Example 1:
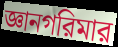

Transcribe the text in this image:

জ্ঞানগরিমার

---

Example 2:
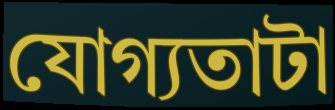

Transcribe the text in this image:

যোগ্যতাটা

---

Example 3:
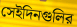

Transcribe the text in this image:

সেইদিনগুলির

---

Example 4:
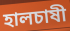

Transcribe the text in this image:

হালচাষী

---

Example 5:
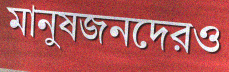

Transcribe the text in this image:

মানুষজনদেরও